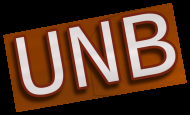
UNB